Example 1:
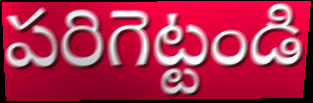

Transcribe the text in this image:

పరిగెట్టండి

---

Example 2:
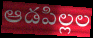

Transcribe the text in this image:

ఆడపిల్లల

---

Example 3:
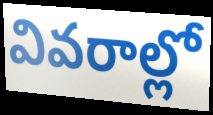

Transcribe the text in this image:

వివరాల్లో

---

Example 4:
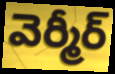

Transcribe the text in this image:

వెర్మీర్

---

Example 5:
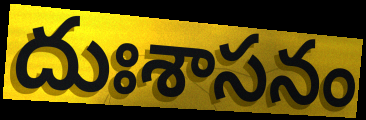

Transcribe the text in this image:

దుఃశాసనం